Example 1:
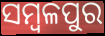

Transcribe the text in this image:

ସମ୍ବଳପୁର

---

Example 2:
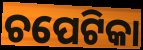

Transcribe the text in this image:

ଚପେଟିକା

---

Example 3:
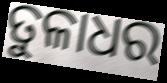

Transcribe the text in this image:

ତୁଳାଧର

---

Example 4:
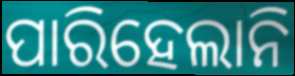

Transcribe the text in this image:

ପାରିହେଲାନି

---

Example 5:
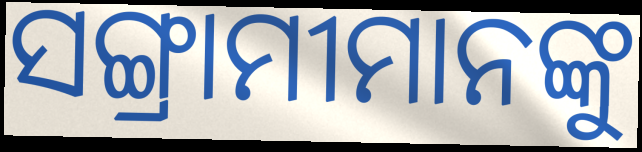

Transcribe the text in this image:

ସଙ୍ଗ୍ରାମୀମାନଙ୍କୁ